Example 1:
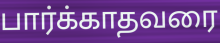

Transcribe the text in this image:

பார்க்காதவரை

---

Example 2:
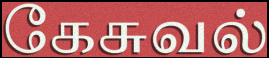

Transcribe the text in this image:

கேசுவல்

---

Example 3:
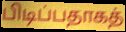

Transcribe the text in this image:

பிடிப்பதாகத்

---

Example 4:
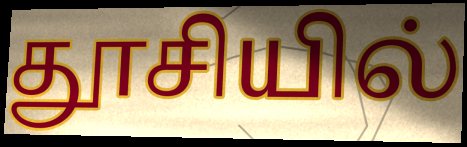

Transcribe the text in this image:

தூசியில்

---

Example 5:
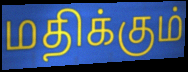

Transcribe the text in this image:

மதிக்கும்